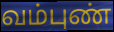
வம்புண்